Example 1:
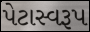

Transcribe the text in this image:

પેટાસ્વરૂપ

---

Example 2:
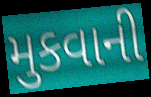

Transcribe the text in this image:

મુકવાની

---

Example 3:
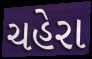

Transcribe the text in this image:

ચહેરા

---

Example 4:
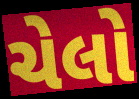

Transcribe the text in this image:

ચેલો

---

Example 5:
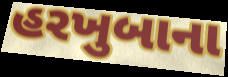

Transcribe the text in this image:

હરખુબાના